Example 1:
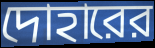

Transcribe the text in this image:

দোহারের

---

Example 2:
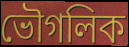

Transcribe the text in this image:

ভৌগলিক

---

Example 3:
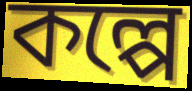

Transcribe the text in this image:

কল্পে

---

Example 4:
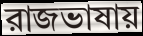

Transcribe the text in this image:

রাজভাষায়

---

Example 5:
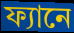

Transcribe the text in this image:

ফ্যানে